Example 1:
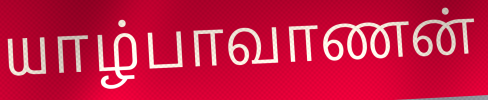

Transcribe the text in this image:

யாழ்பாவாணன்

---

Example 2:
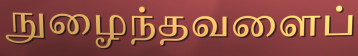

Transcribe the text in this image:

நுழைந்தவளைப்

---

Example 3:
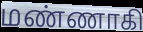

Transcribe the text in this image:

மண்ணாகி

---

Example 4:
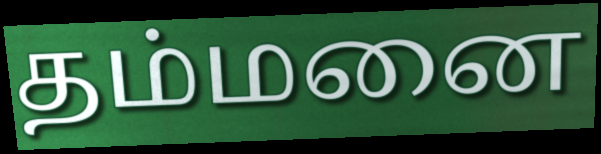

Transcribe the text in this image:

தம்மனை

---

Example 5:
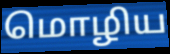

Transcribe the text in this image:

மொழிய